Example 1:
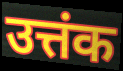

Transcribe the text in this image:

उत्तंक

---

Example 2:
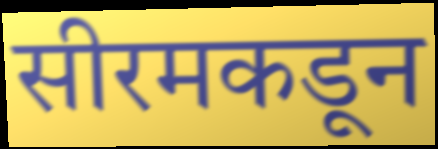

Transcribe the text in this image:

सीरमकडून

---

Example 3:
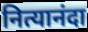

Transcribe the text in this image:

नित्यानंदा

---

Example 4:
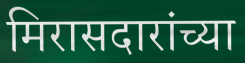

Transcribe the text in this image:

मिरासदारांच्या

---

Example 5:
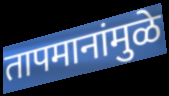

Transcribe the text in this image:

तापमानांमुळे